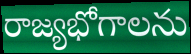
రాజ్యభోగాలను